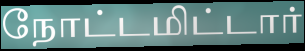
நோட்டமிட்டார்